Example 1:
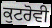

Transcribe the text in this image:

ਕੁਟਰੋਵੀ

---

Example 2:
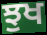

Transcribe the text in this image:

ਝੁਖ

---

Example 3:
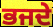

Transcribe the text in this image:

ਭਜਦੇ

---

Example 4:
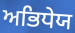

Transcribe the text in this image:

ਅਭਿਧੇਯ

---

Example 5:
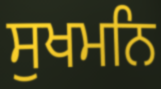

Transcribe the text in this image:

ਸੁਖਮਨਿ